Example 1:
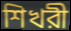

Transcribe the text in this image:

শিখরী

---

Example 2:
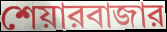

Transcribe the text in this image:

শেয়ারবাজার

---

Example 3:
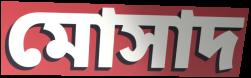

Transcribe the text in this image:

মোসাদ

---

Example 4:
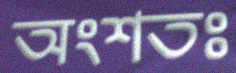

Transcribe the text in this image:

অংশতঃ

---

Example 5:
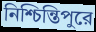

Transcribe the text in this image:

নিশ্চিন্তিপুরে